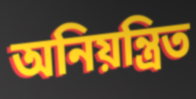
অনিয়ন্ত্ৰিত